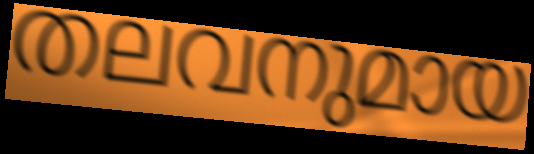
തലവനുമായ